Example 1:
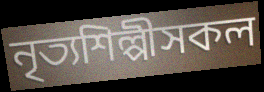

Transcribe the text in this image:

নৃত্যশিল্পীসকল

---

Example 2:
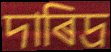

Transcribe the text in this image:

দাৰিদ্ৰ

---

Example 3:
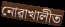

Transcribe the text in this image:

নোৱাখালীত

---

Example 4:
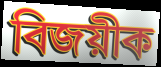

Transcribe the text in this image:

বিজয়ীক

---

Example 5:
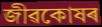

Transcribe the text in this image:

জীৱকোষৰ